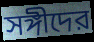
সঙ্গীদের